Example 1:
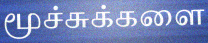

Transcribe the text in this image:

மூச்சுக்களை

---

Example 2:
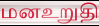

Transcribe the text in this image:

மனஉறுதி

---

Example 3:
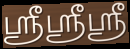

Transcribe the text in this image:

ஸ்ரீஸ்ரீஸ்ரீ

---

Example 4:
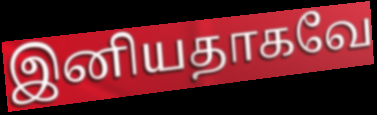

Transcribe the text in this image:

இனியதாகவே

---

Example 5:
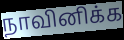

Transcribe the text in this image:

நாவினிக்க